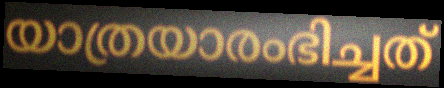
യാത്രയാരംഭിച്ചത്